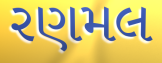
રણમલ